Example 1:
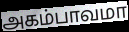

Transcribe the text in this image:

அகம்பாவமா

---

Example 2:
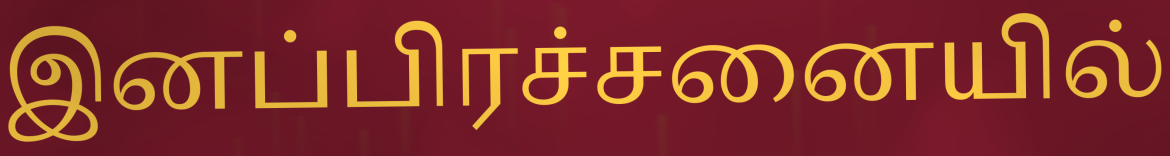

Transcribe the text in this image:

இனப்பிரச்சனையில்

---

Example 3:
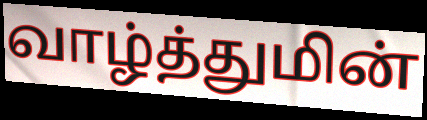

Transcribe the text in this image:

வாழ்த்துமின்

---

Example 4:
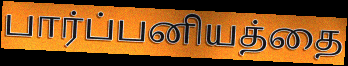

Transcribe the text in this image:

பார்ப்பனியத்தை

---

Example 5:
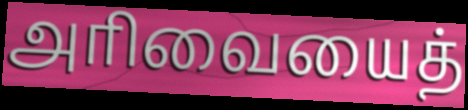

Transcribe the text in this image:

அரிவையைத்